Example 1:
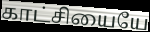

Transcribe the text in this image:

காட்சியையே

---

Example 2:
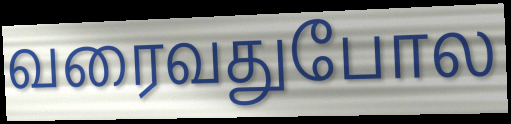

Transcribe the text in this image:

வரைவதுபோல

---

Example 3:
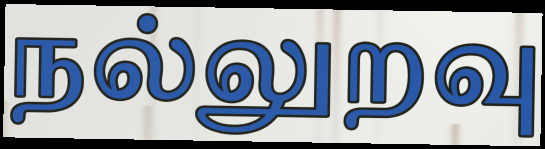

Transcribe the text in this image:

நல்லுறவு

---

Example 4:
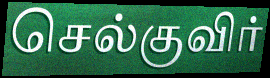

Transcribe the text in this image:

செல்குவிர்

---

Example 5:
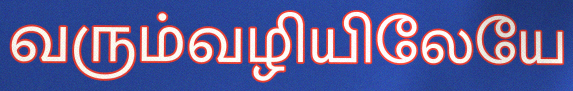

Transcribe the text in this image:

வரும்வழியிலேயே